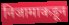
निजामाकडून